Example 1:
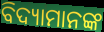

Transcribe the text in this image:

ବିଦ୍ୟାମାନଙ୍କ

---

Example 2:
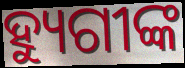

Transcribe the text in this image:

ହ୍ୟୁଗୀଙ୍କ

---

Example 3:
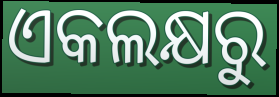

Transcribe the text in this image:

ଏକଲକ୍ଷରୁ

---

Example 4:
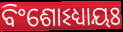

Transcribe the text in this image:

ବିଂଶୋଽଧ୍ୟାୟଃ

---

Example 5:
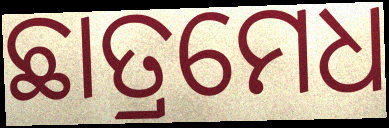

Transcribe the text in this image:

ଛାତ୍ରମେଧ